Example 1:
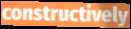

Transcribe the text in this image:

constructively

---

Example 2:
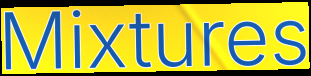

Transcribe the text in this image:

Mixtures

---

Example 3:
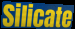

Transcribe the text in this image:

Silicate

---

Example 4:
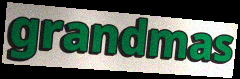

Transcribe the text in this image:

grandmas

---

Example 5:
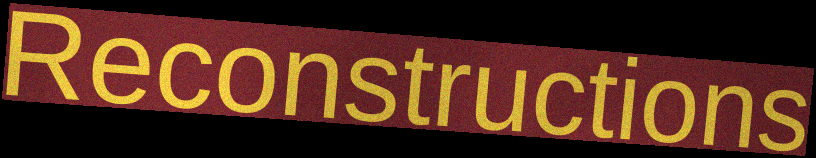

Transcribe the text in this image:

Reconstructions